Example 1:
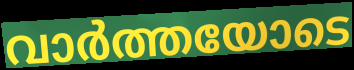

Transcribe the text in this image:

വാർത്തയോടെ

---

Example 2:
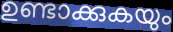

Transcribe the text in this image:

ഉണ്ടാക്കുകയും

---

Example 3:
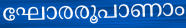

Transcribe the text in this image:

ഘോരരൂപാണാം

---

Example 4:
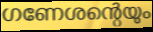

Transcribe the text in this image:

ഗണേശന്റെയും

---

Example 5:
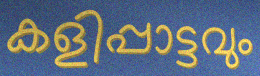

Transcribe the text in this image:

കളിപ്പാട്ടവും